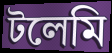
টলেমি